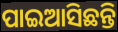
ପାଇଆସିଛନ୍ତି